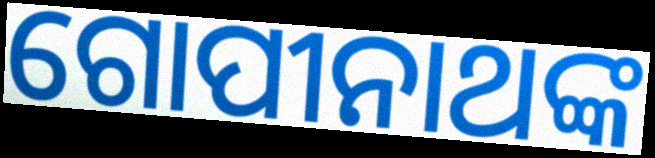
ଗୋପୀନାଥଙ୍କ